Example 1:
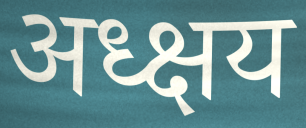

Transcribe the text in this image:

अध्क्षय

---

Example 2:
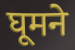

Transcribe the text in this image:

घूमने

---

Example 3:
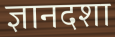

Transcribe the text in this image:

ज्ञानदशा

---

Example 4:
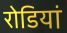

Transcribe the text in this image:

रोडियां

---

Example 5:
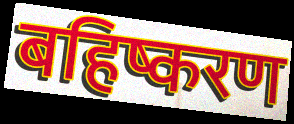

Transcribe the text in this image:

बहिष्करण